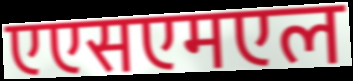
एएसएमएल